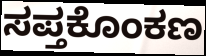
ಸಪ್ತಕೊಂಕಣ